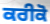
ਕਰੀਕੋ